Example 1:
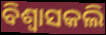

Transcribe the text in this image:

ବିଶ୍ଵାସକଲି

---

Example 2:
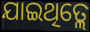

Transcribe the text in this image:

ଯାଇଥିତ୍ଲେ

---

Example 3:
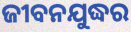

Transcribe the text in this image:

ଜୀବନଯୁଦ୍ଧର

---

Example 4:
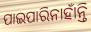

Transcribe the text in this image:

ପାଇପାରିନାହାଁନ୍ତି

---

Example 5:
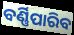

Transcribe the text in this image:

ବର୍ଣ୍ଣିପାରିବ